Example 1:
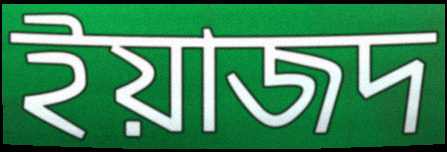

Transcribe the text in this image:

ইয়াজদ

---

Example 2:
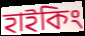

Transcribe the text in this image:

হাইকিং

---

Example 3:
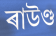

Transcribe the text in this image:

ৰাউণ্ড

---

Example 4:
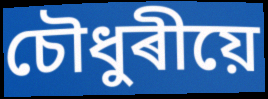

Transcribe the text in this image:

চৌধুৰীয়ে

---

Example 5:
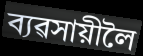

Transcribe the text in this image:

ব্যৱসায়ীলৈ